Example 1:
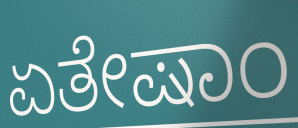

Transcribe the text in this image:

ಏತೇಷಾಂ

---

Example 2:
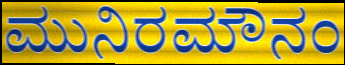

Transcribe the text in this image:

ಮುನಿರಮೌನಂ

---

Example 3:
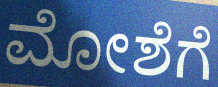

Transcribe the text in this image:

ಮೋಶೆಗೆ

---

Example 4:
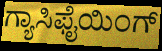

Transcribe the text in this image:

ಗ್ಯಾಸಿಫೈಯಿಂಗ್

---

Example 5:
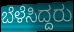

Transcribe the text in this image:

ಬೆಳೆಸಿದ್ದರು